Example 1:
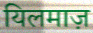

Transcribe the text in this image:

यिलमाज़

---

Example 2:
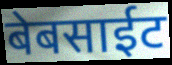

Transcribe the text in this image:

बेबसाईट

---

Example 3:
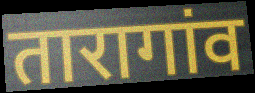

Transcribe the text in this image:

तारागांव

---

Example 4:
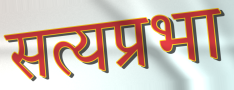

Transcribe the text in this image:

सत्यप्रभा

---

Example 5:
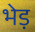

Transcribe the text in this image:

भेड़